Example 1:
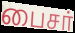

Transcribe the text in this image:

பைசர்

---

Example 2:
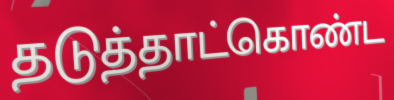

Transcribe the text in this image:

தடுத்தாட்கொண்ட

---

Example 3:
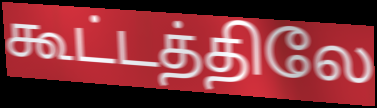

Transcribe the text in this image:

கூட்டத்திலே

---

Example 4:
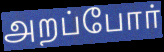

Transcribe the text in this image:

அறப்போர்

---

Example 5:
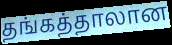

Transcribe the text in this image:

தங்கத்தாலான